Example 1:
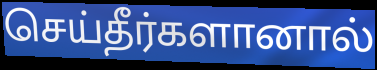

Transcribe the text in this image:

செய்தீர்களானால்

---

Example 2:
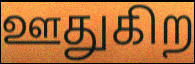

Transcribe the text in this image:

ஊதுகிற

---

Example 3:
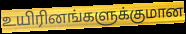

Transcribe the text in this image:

உயிரினங்களுக்குமான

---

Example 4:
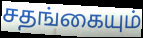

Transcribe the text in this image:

சதங்கையும்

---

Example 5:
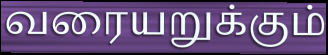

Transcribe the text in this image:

வரையறுக்கும்